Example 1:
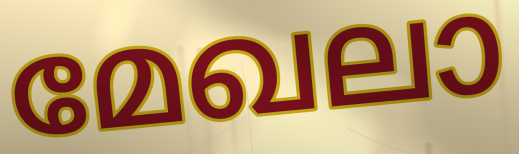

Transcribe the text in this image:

മേഖലാ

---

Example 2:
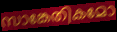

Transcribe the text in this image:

സാങ്കേതികമോ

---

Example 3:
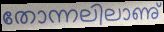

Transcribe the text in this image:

തോന്നലിലാണു്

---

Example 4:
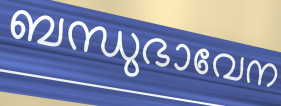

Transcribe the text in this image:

ബന്ധുഭാവേന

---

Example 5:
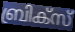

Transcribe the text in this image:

ബ്രിക്സ്